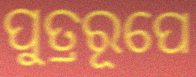
ପୁତ୍ରରୂପେ